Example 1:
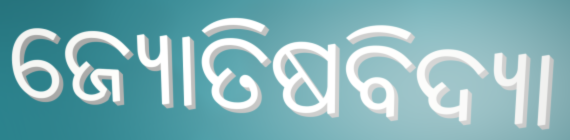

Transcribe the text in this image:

ଜ୍ୟୋତିଷବିଦ୍ୟା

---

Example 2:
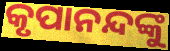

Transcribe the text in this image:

କୃପାନନ୍ଦଙ୍କୁ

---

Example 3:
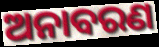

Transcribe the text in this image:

ଅନାବରଣ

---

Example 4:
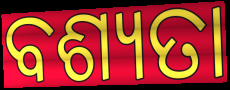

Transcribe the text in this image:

ବଶ୍ୟତା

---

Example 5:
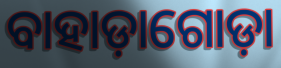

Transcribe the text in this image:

ବାହାଡ଼ାଗୋଡ଼ା